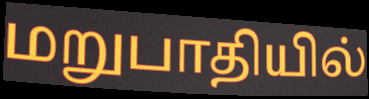
மறுபாதியில்